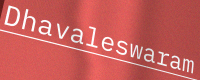
Dhavaleswaram